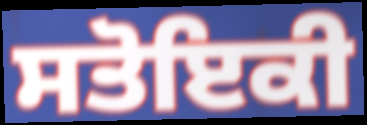
ਸਤੋਇਕੀ